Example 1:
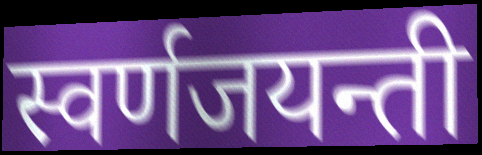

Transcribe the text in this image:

स्वर्णजयन्ती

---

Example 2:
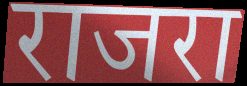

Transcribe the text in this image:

राजरा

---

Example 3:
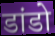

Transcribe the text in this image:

डांडो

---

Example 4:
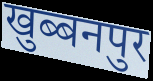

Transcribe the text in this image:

खुब्बनपुर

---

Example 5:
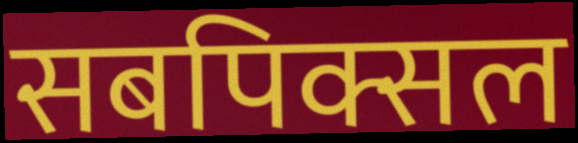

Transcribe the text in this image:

सबपिक्सल